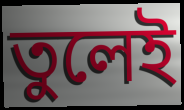
তুলেই